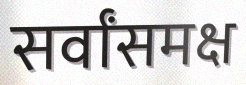
सर्वांसमक्ष